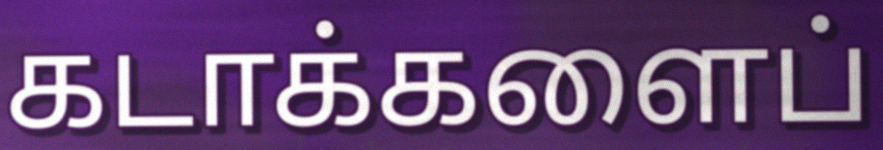
கடாக்களைப்